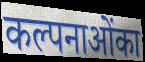
कल्पनाओंका